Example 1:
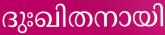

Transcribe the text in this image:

ദുഃഖിതനായി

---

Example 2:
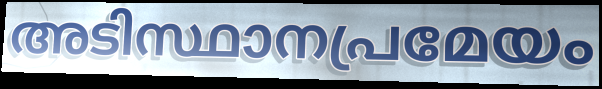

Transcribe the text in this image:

അടിസ്ഥാനപ്രമേയം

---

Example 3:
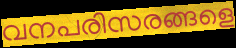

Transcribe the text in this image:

വനപരിസരങ്ങളെ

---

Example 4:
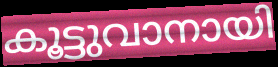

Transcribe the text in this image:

കൂട്ടുവാനായി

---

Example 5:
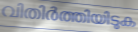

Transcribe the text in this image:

വിതിർത്തിയിടുക